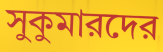
সুকুমারদের